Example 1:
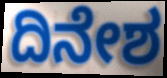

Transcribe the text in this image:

ದಿನೇಶ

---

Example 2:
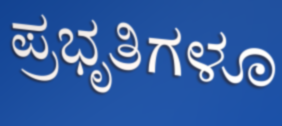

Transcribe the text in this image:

ಪ್ರಭೃತಿಗಳೂ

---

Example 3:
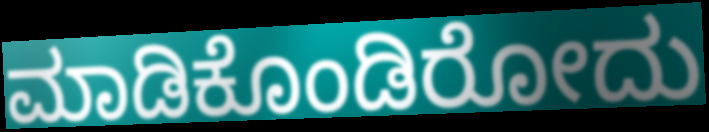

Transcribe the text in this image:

ಮಾಡಿಕೊಂಡಿರೋದು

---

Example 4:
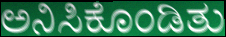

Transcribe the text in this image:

ಅನಿಸಿಕೊಂಡಿತು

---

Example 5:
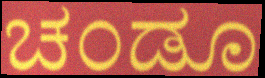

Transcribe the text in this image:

ಚಂಡೂ